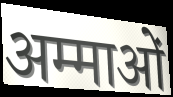
अम्माओं